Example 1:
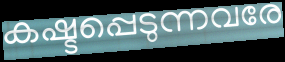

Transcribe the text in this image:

കഷ്ടപ്പെടുന്നവരേ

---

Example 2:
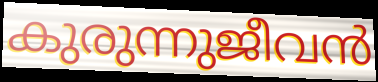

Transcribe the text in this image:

കുരുന്നുജീവൻ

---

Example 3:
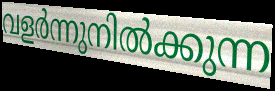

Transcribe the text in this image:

വളർന്നുനിൽക്കുന്ന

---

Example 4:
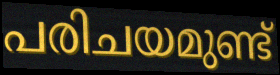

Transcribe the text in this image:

പരിചയമുണ്ട്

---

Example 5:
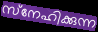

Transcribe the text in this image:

സ്‌നേഹിക്കുന്ന